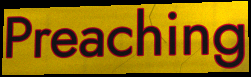
Preaching